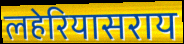
लहेरियासराय